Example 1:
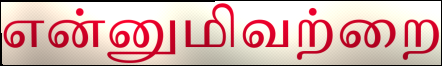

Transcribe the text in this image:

என்னுமிவற்றை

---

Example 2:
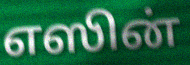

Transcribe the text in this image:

எஸின்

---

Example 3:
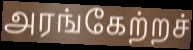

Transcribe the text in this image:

அரங்கேற்றச்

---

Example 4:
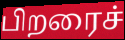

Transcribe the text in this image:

பிறரைச்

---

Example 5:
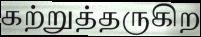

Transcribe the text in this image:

கற்றுத்தருகிற